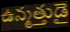
ఉన్మత్తుడై